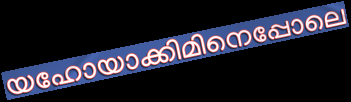
യഹോയാക്കിമിനെപ്പോലെ